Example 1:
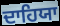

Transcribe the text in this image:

ਦਾਹਿਯਾ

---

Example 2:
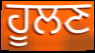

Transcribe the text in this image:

ਹੂਲਣ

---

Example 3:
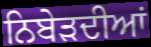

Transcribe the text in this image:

ਨਿਬੇੜਦੀਆਂ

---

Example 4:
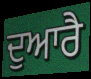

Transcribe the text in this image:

ਦੁਆਰੈ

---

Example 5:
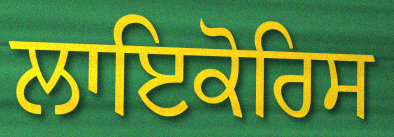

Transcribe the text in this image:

ਲਾਇਕੋਰਿਸ